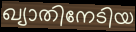
ഖ്യാതിനേടിയ